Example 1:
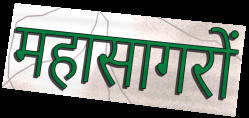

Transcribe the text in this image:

महासागरों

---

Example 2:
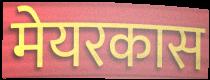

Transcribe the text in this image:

मेयरकास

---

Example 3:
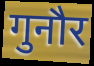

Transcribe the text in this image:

गुनौर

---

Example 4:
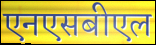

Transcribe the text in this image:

एनएसबीएल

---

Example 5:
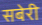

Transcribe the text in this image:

सबेरी